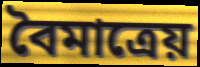
বৈমাত্রেয়